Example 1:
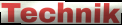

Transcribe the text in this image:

Technik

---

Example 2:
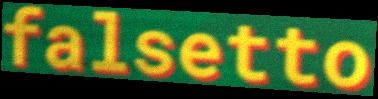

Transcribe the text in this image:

falsetto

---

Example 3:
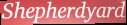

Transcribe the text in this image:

Shepherdyard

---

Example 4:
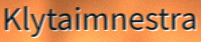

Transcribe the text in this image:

Klytaimnestra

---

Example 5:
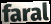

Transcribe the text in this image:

faral